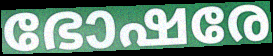
ഭോഷരേ